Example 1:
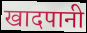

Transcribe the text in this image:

खादपानी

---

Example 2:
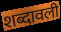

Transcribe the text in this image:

शब्दावली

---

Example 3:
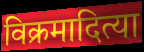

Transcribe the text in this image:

विक्रमादित्या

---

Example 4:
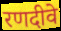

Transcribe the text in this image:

रणदीवे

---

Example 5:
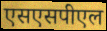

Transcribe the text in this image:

एसएसपीएल